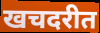
खचदरीत